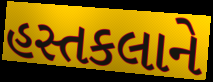
હસ્તકલાને